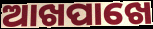
ଆଖପାଖେ